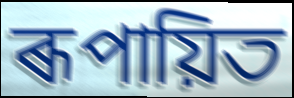
ৰূপায়িত